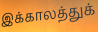
இக்காலத்துக்